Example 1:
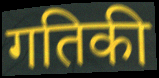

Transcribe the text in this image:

गतिकी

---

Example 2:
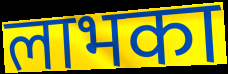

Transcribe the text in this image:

लाभका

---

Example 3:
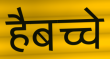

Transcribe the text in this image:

हैबच्चे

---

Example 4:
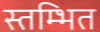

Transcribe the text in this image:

स्तम्भित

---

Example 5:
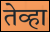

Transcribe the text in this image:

तेव्हा